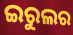
ଇରୁଲର